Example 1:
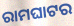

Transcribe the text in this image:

ରାମଘାଟର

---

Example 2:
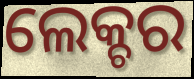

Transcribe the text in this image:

ଲେକ୍ଚର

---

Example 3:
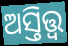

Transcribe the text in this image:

ଅସ୍ତିତ୍ତ୍ବ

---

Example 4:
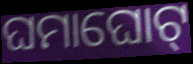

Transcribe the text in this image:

ଘମାଘୋଟ୍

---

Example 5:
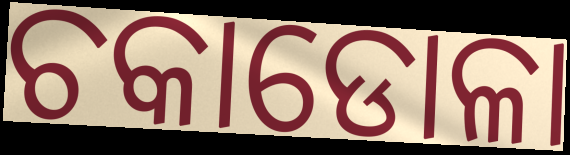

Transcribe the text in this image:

ଚକାଡୋଳା